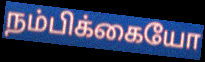
நம்பிக்கையோ